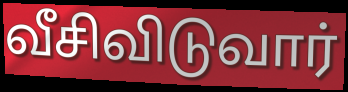
வீசிவிடுவார்